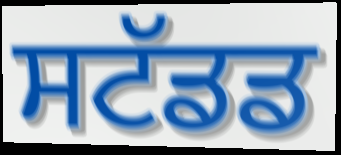
ਸਟੱਡਡ